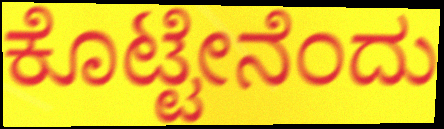
ಕೊಟ್ಟೇನೆಂದು